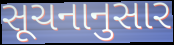
સૂચનાનુસાર